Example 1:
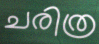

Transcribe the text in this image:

ചരിത്ര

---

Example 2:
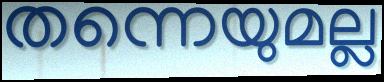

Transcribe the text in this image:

തന്നെയുമല്ല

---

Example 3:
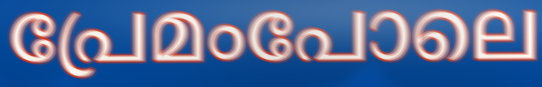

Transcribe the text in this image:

പ്രേമംപോലെ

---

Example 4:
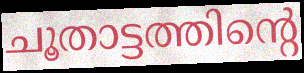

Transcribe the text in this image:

ചൂതാട്ടത്തിന്റെ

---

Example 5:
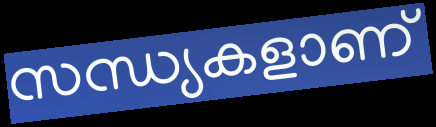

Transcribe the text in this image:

സന്ധ്യകളാണ്